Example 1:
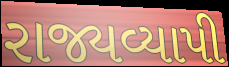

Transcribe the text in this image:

રાજ્યવ્યાપી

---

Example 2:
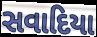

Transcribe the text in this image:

સવાદિયા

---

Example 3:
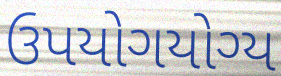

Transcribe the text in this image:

ઉપયોગયોગ્ય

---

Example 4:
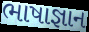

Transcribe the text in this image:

ભાષાજ્ઞાન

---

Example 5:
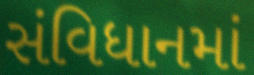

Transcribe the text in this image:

સંવિધાનમાં